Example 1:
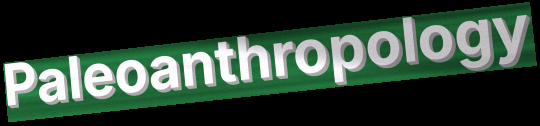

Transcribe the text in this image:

Paleoanthropology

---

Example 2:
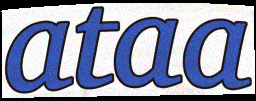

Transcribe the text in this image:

ataa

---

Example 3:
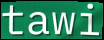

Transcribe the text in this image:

tawi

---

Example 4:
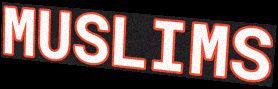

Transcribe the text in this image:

MUSLIMS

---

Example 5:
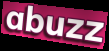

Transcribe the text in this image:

abuzz